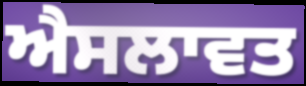
ਐਸਲਾਵਤ